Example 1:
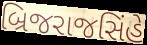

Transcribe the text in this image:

બ્રિજરાજસિંહે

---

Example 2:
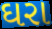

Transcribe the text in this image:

ઘરા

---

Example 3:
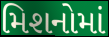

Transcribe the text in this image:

મિશનોમાં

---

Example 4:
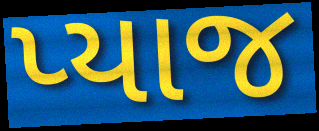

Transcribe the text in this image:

પ્યાજ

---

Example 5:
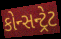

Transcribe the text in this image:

કોન્સન્ટ્રેટ